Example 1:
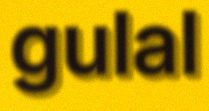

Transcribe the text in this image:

gulal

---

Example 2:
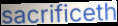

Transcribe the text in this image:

sacrificeth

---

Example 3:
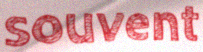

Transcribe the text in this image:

souvent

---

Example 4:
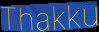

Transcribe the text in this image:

Thakku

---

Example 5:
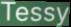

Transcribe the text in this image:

Tessy